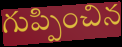
గుప్పించిన